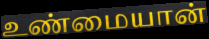
உண்மையான்